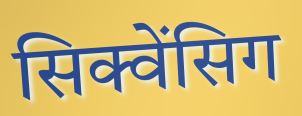
सिक्वेंसिग